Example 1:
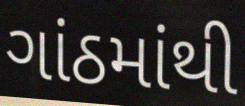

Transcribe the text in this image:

ગાંઠમાંથી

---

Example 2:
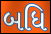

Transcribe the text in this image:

બધિ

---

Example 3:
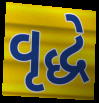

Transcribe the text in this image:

વૃદ્ધે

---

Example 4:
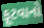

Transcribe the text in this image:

ફૂટવાનો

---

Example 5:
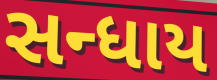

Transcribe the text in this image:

સન્ધાય